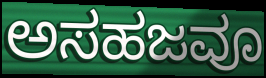
ಅಸಹಜವೂ